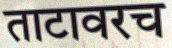
ताटावरच